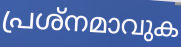
പ്രശ്നമാവുക